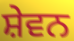
ਸ਼ੇਵਨ